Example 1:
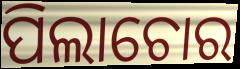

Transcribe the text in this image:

ପିଲାଚୋର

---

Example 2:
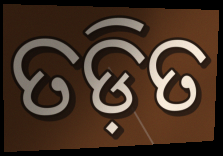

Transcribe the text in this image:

ତଡ଼ିତ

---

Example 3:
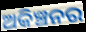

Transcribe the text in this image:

ଅକିଞ୍ଚନର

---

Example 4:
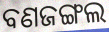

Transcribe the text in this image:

ବଣଜଙ୍ଗଲ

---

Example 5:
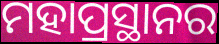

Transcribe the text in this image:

ମହାପ୍ରସ୍ଥାନର